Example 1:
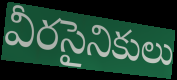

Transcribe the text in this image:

వీరసైనికులు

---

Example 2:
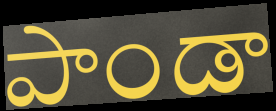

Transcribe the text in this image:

పాండా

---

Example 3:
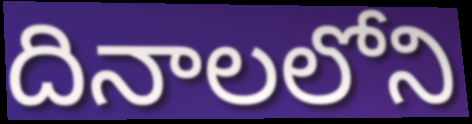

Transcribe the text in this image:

దినాలలోని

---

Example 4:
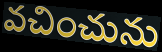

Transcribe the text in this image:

వచించును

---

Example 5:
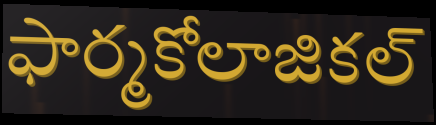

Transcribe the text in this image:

ఫార్మకోలాజికల్